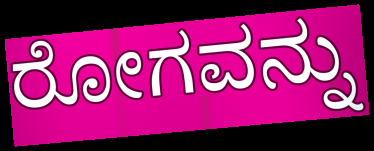
ರೋಗವನ್ನು